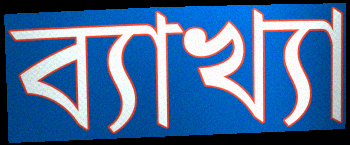
ব্যাখ্যা